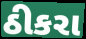
ઠીકરા